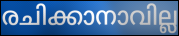
രചിക്കാനാവില്ല